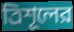
ত্রিশূলের